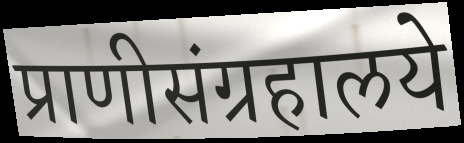
प्राणीसंग्रहालये